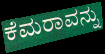
ಕೆಮರಾವನ್ನು